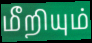
மீறியும்